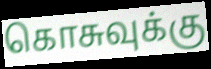
கொசுவுக்கு